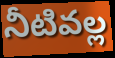
నీటివల్ల